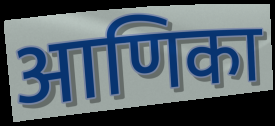
आणिका